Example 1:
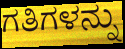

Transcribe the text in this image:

ಗತಿಗಳನ್ನು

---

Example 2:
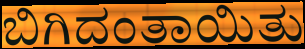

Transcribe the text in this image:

ಬಿಗಿದಂತಾಯಿತು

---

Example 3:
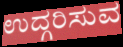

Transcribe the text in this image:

ಉದ್ಗರಿಸುವ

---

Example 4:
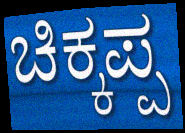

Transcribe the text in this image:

ಚಿಕ್ಕಪ್ಪ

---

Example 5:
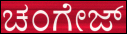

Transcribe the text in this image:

ಚಂಗೇಜ್